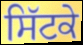
ਸਿੱਟਕੇ